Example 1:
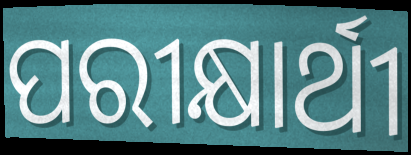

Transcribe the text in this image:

ପରୀକ୍ଷାର୍ଥୀ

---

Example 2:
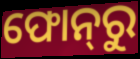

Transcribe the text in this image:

ଫୋନ୍‌ରୁ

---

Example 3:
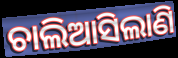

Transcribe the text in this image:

ଚାଲିଆସିଲାଣି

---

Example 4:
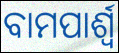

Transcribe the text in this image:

ବାମପାର୍ଶ୍ଵ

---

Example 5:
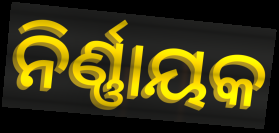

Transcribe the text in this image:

ନିର୍ଣ୍ଣାୟକ